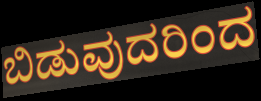
ಬಿಡುವುದರಿಂದ